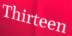
Thirteen